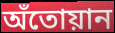
অঁতোয়ান